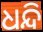
ଧନ୍ଦି